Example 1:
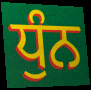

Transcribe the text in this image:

ਧੁੰਨ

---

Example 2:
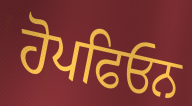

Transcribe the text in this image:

ਹੋਪਫਿਓਨ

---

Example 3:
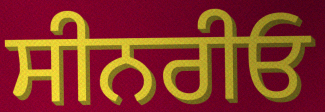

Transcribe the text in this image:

ਸੀਨਰੀਓ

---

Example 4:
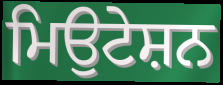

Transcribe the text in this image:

ਮਿਉਟੇਸ਼ਨ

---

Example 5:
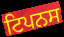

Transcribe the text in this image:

ਟਿਪਨਸ